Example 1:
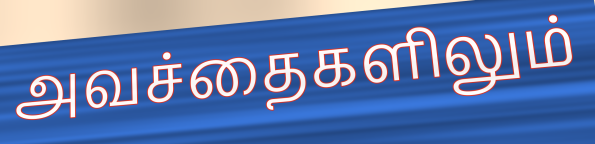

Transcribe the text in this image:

அவச்தைகளிலும்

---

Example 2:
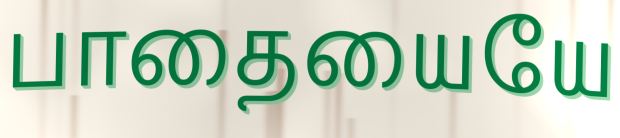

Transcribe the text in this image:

பாதையையே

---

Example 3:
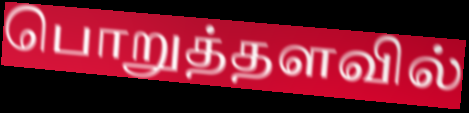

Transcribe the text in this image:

பொறுத்தளவில்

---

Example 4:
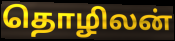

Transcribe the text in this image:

தொழிலன்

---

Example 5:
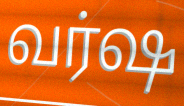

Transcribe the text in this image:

வர்ஷ